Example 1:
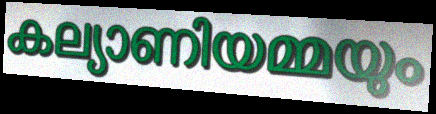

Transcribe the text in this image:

കല്യാണിയമ്മയും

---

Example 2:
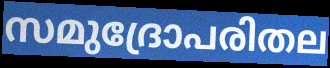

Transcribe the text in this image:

സമുദ്രോപരിതല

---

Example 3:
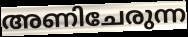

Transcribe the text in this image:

അണിചേരുന്ന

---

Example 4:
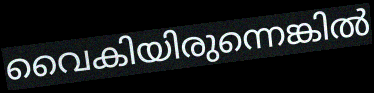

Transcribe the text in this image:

വൈകിയിരുന്നെങ്കിൽ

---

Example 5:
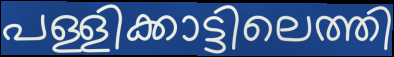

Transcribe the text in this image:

പള്ളിക്കാട്ടിലെത്തി